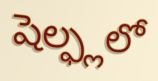
షెల్ఫ్లలో